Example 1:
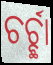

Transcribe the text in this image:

ଚର୍ଚ୍ଛା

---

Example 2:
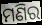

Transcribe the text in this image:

ମଣିର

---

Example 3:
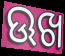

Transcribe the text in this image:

ଊଖ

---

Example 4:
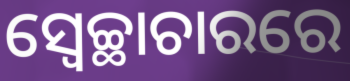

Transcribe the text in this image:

ସ୍ବେଚ୍ଛାଚାରରେ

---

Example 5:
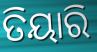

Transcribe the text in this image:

ତିୟାରି